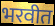
भरवीत